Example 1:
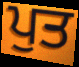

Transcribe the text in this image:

ਪੁਤ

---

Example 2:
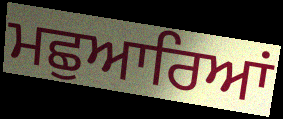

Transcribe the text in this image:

ਮਛੁਆਰਿਆਂ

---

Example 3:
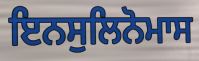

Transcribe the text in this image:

ਇਨਸੁਲਿਨੋਮਾਸ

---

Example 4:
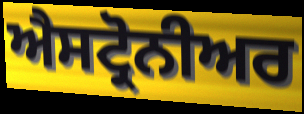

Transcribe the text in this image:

ਐਸਟ੍ਰੋਨੀਅਰ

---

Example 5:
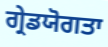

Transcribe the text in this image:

ਗ੍ਰੇਡਯੋਗਤਾ